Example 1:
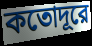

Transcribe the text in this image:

কতোদূরে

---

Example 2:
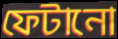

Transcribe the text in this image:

ফেটানো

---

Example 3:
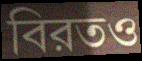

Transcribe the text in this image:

বিরতও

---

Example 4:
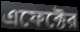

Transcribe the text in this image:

এফেক্টের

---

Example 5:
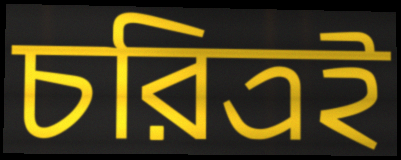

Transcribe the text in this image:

চরিত্রই